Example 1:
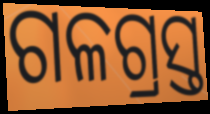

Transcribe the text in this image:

ଗଳଗ୍ରସ୍ତ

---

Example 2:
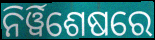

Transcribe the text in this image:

ନିର୍ୱିଶେଷରେ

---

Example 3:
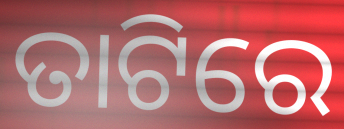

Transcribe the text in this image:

ତାଟିରେ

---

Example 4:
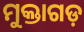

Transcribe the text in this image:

ମୁକ୍ତାଗଡ଼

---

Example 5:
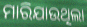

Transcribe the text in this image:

ମାରିଯାଉଥିଲା